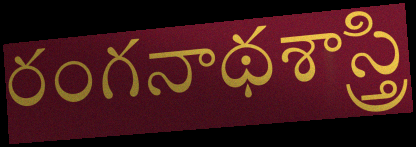
రంగనాథశాస్త్రి